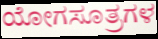
ಯೋಗಸೂತ್ರಗಳ